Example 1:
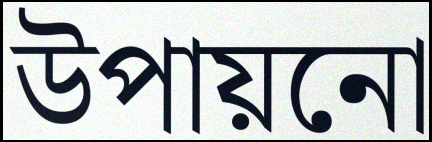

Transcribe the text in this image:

উপায়নো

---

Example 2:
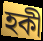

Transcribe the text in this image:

হকী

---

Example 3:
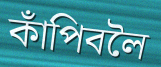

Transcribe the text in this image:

কাঁপিবলৈ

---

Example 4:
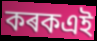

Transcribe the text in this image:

কৰকএই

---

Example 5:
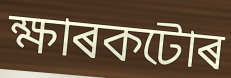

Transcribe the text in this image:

ক্ষাৰকটোৰ